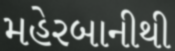
મહેરબાનીથી